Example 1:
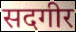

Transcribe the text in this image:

सदगीर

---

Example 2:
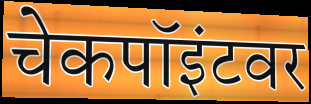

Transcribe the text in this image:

चेकपॉइंटवर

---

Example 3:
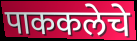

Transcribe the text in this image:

पाककलेचे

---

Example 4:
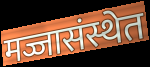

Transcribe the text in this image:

मज्जासंस्थेत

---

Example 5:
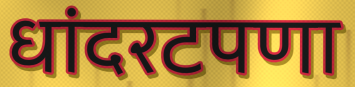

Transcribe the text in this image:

धांदरटपणा